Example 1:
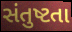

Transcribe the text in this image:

સંતુષ્ટતા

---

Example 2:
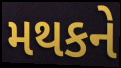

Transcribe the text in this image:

મથકને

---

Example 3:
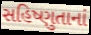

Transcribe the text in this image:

સહિષ્ણુતાનાં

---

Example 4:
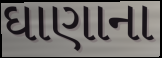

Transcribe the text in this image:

ઘાણાના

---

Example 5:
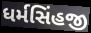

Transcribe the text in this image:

ધર્મસિંહજી